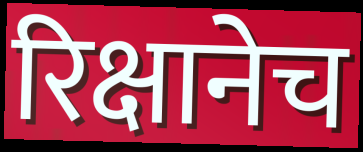
रिक्षानेच